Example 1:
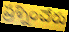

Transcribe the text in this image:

ప్రశ్నించేరు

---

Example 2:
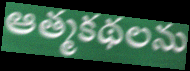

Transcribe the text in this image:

ఆత్మకథలను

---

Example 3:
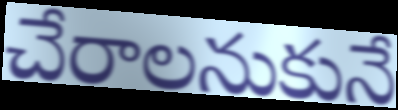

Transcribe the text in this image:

చేరాలనుకునే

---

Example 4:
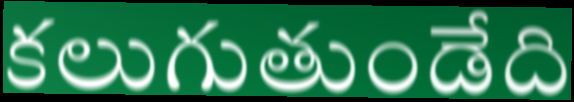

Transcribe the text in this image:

కలుగుతుండేది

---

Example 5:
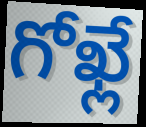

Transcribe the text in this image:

గోఖ్లే